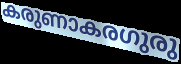
കരുണാകരഗുരു